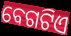
ବେଗଟିଏ